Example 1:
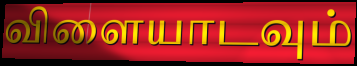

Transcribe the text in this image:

விளையாடவும்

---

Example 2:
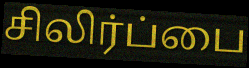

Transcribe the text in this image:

சிலிர்ப்பை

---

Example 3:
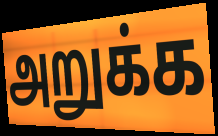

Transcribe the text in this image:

அறுக்க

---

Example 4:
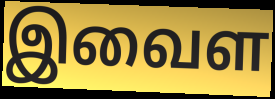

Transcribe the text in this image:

இவைள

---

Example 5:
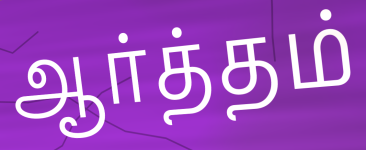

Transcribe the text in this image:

ஆர்த்தம்